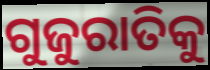
ଗୁଜୁରାତିକୁ